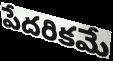
పేదరికమే